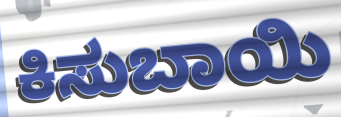
ಕಿಸುಬಾಯಿ